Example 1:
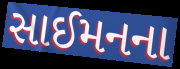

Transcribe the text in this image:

સાઈમનના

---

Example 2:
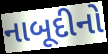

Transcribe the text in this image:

નાબૂદીનો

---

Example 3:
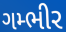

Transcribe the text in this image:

ગમ્ભીર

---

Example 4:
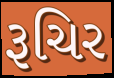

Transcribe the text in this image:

રૂચિર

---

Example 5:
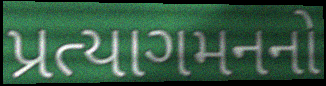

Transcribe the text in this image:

પ્રત્યાગમનનો